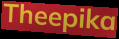
Theepika